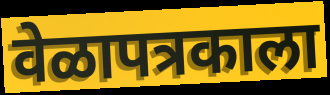
वेळापत्रकाला